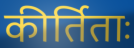
कीर्तिताः